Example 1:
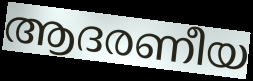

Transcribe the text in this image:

ആദരണീയ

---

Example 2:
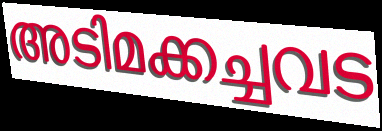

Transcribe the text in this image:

അടിമക്കച്ചവട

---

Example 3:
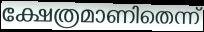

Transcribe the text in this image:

ക്ഷേത്രമാണിതെന്ന്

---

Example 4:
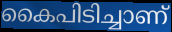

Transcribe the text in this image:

കൈപിടിച്ചാണ്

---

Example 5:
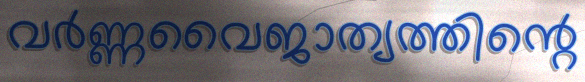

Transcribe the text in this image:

വർണ്ണവൈജാത്യത്തിന്റെ